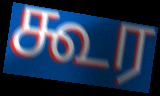
கூர